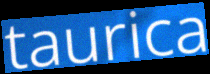
taurica